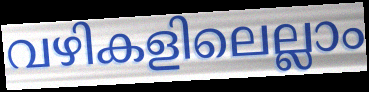
വഴികളിലെല്ലാം